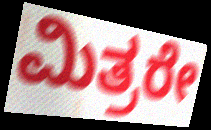
ಮಿತ್ರರೇ